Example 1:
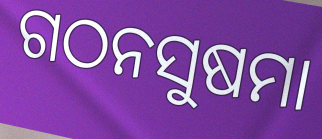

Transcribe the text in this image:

ଗଠନସୁଷମା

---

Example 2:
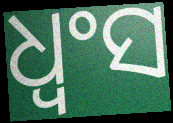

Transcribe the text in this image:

ଧ୍ଵଂସ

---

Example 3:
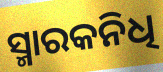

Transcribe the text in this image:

ସ୍ମାରକନିଧି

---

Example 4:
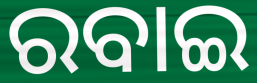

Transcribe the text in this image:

ରବାଇ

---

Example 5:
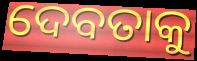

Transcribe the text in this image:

ଦେବତାକୁ